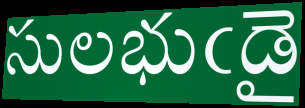
సులభుఁడై